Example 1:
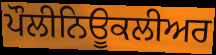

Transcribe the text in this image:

ਪੌਲੀਨਿਊਕਲੀਅਰ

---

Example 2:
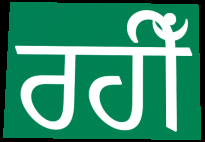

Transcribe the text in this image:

ਰਹੀਁ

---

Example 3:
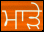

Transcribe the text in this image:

ਮਾੜੇ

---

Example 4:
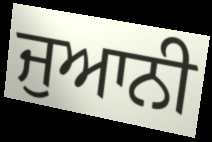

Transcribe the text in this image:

ਜੁਆਨੀ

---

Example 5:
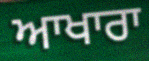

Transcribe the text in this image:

ਆਖਾਰਾ